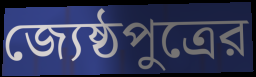
জ্যেষ্ঠপুত্রের